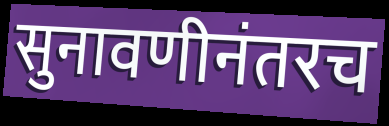
सुनावणीनंतरच